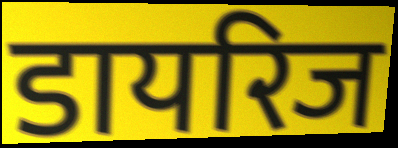
डायरिज